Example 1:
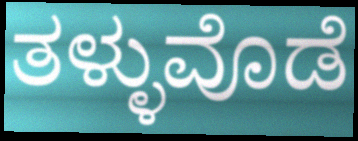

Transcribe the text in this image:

ತಳ್ಳುವೊಡೆ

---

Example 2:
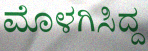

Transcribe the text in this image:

ಮೊಳಗಿಸಿದ್ದ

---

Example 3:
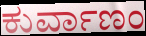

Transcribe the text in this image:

ಕುರ್ವಾಣಂ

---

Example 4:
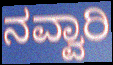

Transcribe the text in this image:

ನವ್ವಾರಿ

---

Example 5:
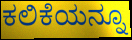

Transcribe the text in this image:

ಕಲಿಕೆಯನ್ನೂ